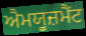
ਐਮਯੂਜ਼ਮੈਂਟ